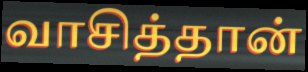
வாசித்தான்